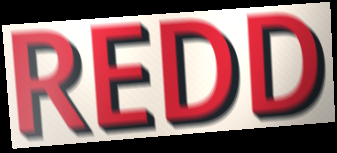
REDD